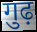
गुढ़